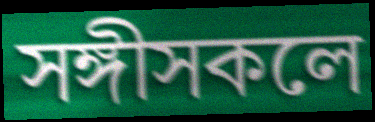
সঙ্গীসকলে